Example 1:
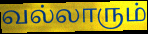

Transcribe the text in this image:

வல்லாரும்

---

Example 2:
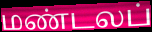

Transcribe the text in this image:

மண்டலப்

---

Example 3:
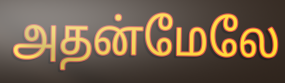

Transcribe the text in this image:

அதன்மேலே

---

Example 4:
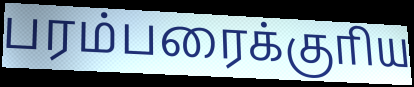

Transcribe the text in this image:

பரம்பரைக்குரிய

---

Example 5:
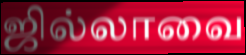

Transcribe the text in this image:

ஜில்லாவை